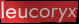
leucoryx